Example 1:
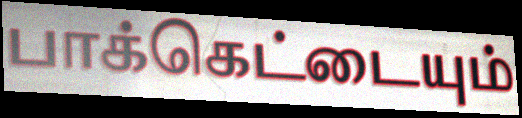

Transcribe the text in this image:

பாக்கெட்டையும்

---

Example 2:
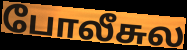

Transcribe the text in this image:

போலீசுல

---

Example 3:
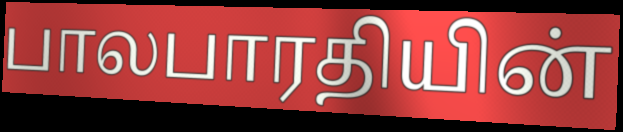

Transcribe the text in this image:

பாலபாரதியின்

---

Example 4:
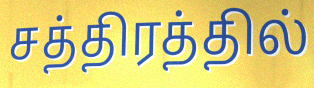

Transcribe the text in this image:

சத்திரத்தில்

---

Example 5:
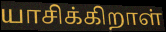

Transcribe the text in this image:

யாசிக்கிறாள்